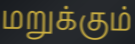
மறுக்கும்